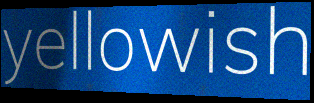
yellowish